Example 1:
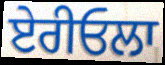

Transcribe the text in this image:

ਏਰੀਓਲਾ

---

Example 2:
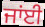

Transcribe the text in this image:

ਜਾਂਈ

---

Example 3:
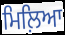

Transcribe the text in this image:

ਮਿਲ਼ਿਆ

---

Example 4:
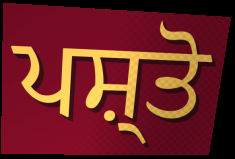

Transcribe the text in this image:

ਪਸ਼੍ਤੋ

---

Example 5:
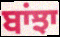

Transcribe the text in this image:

ਬਾਂਝਾ